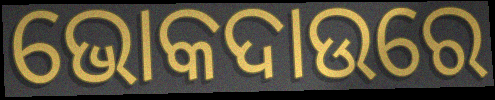
ଭୋକଦାଉରେ